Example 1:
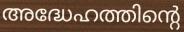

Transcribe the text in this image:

അദ്ധേഹത്തിന്റെ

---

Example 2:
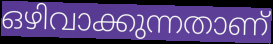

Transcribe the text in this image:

ഒഴിവാക്കുന്നതാണ്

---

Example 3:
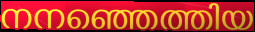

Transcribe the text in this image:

നനഞ്ഞെത്തിയ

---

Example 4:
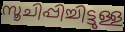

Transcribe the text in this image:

സൂചിപ്പിച്ചിട്ടുള്ള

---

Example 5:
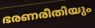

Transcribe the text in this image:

ഭരണരീതിയും